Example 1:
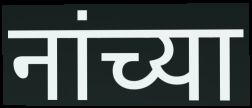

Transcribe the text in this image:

नांच्या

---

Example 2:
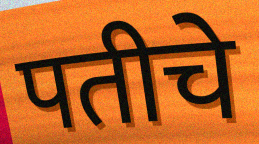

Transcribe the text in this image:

पतीचे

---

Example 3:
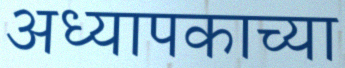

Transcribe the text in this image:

अध्यापकाच्या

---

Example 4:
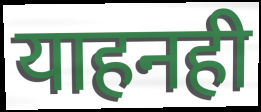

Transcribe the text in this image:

याहनही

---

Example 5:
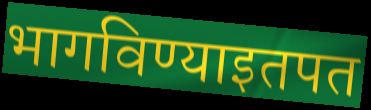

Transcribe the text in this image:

भागविण्याइतपत